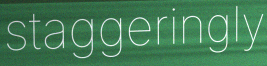
staggeringly